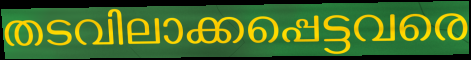
തടവിലാക്കപ്പെട്ടവരെ